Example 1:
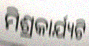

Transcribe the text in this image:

ମିଶ୍ରକାର୍ଯ୍ୟଟି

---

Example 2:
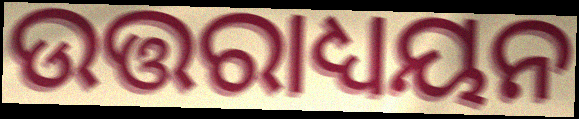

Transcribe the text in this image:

ଉତ୍ତରାଧ୍ୟୟନ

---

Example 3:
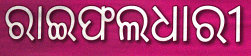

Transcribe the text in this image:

ରାଇଫଲଧାରୀ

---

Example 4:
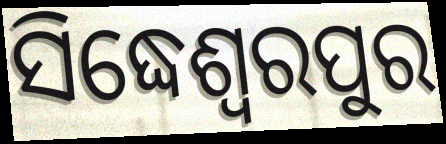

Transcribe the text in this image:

ସିଦ୍ଧେଶ୍ଵରପୁର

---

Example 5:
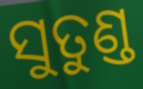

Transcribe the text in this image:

ସୁତୁଣ୍ଡ